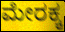
ಮೇರಕ್ಕ